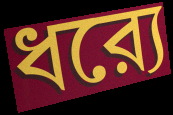
ধর‍্যে